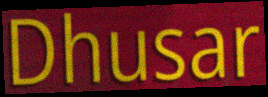
Dhusar